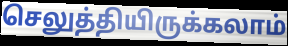
செலுத்தியிருக்கலாம்